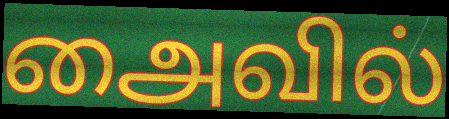
அைவில்